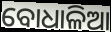
ବୋଧାଳିଆ